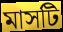
মাসটি